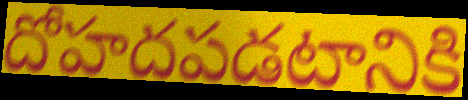
దోహదపడటానికి